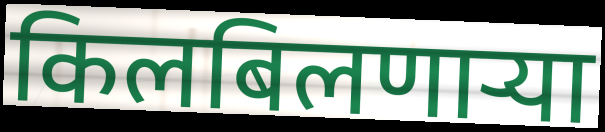
किलबिलणाऱ्या